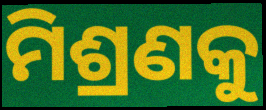
ମିଶ୍ରଣକୁ